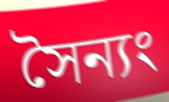
সৈন্যং